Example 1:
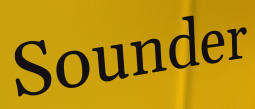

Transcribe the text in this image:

Sounder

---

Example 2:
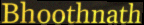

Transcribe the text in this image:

Bhoothnath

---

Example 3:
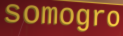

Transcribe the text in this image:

somogro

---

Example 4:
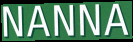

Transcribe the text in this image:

NANNA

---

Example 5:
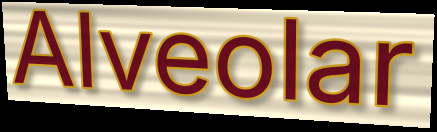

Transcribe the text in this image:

Alveolar